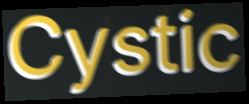
Cystic